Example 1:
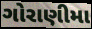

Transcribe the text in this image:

ગોરાણીમા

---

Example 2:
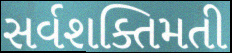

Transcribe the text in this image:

સર્વશક્તિમતી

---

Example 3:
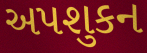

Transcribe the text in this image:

અપશુકન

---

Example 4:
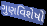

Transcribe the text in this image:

ગુણવિશેષો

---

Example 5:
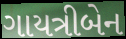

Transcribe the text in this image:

ગાયત્રીબેન